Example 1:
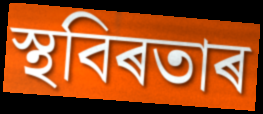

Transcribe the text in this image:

স্থবিৰতাৰ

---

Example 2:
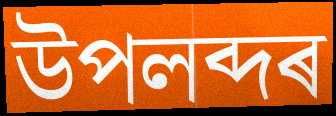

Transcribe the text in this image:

উপলব্দৰ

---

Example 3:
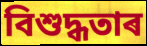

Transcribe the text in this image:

বিশুদ্ধতাৰ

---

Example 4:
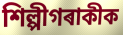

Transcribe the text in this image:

শিল্পীগৰাকীক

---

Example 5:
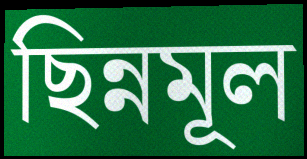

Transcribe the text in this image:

ছিন্নমূল